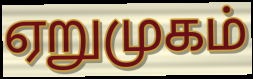
ஏறுமுகம்